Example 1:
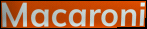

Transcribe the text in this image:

Macaroni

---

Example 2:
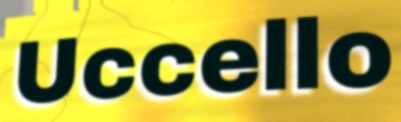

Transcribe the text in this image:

Uccello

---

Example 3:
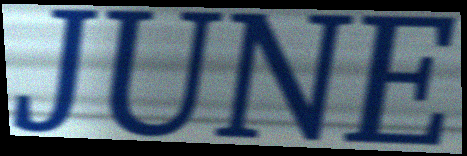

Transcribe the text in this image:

JUNE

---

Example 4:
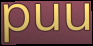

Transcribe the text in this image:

puu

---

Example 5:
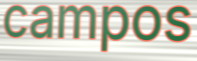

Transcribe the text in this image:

campos